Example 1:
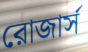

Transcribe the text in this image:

রোজার্স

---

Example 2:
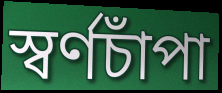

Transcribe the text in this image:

স্বর্ণচাঁপা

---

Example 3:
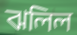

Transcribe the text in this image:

ঝলিল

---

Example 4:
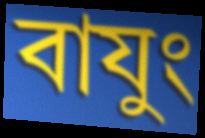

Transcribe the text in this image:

বাযুং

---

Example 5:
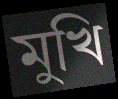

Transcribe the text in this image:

মুখি